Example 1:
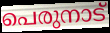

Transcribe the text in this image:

പെരുനാട്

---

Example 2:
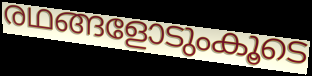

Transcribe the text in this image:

രഥങ്ങളോടുംകൂടെ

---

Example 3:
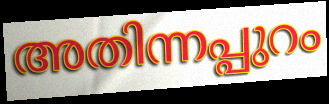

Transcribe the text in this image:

അതിന്നപ്പുറം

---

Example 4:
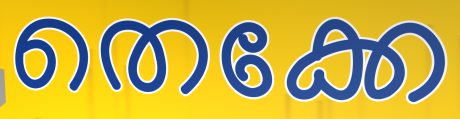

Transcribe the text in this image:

തെക്കേ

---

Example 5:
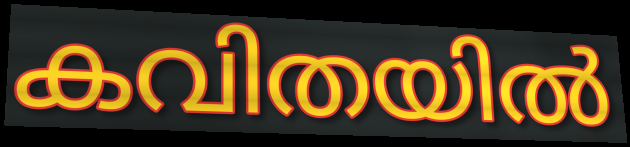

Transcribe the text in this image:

കവിതയിൽ